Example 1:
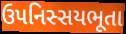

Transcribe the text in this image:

ઉપનિસ્સયભૂતા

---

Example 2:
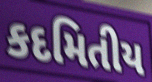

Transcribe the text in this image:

કદમિતીય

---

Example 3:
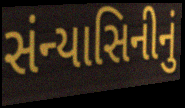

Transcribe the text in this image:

સંન્યાસિનીનું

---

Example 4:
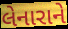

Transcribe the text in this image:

લેનારાને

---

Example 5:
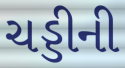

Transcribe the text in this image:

ચડ્ડીની